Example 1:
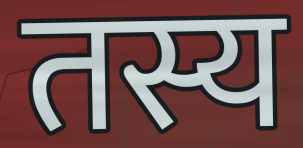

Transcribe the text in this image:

तस्य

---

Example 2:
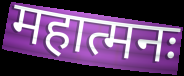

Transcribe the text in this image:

महात्मनः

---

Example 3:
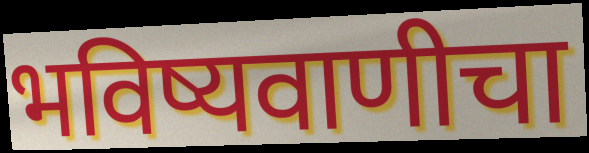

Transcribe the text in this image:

भविष्यवाणीचा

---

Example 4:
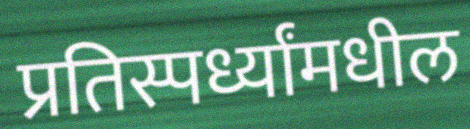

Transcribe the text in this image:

प्रतिस्पर्ध्यांमधील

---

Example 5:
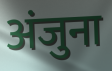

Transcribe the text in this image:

अंजुना